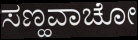
ಸಣ್ಹವಾಚೋ